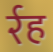
र्रह